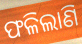
ଫଳିଲାଣି